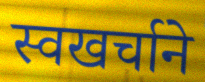
स्वखर्चाने